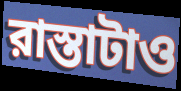
রাস্তাটাও